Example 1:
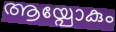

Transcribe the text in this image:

ആയ്പോകും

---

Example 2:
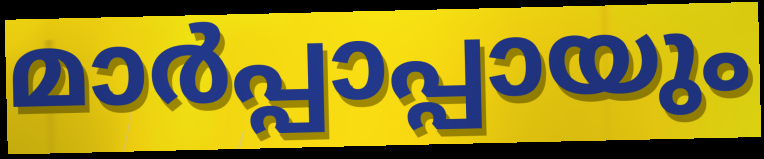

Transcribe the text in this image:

മാർപ്പാപ്പായും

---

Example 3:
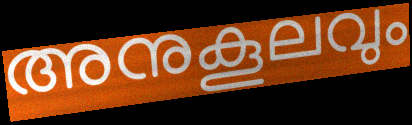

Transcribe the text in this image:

അനുകൂലവും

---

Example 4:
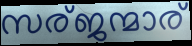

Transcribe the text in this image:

സര്ജന്മാര്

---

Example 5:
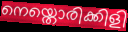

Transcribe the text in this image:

നെയ്തൊരിക്കിളി